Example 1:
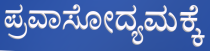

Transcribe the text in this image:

ಪ್ರವಾಸೋದ್ಯಮಕ್ಕೆ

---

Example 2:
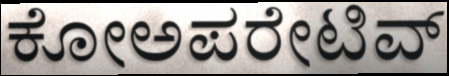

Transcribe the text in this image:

ಕೋಅಪರೇಟಿವ್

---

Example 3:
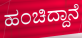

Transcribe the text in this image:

ಹಂಚಿದ್ದಾನೆ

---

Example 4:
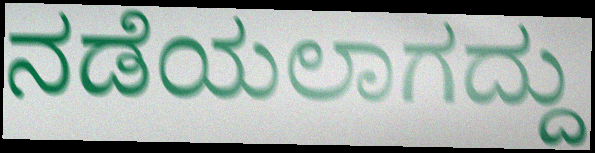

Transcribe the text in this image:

ನಡೆಯಲಾಗದ್ದು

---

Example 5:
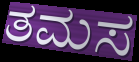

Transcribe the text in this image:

ತಮಸ